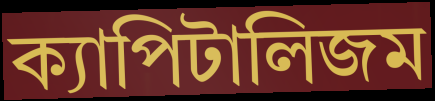
ক্যাপিটালিজম